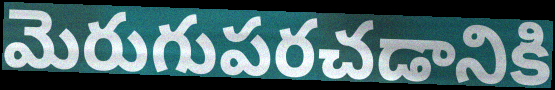
మెరుగుపరచడానికి